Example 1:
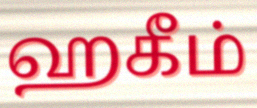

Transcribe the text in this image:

ஹகீம்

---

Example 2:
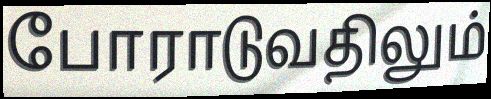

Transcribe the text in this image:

போராடுவதிலும்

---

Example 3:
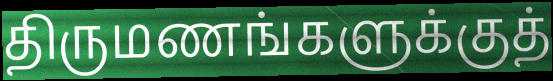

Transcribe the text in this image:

திருமணங்களுக்குத்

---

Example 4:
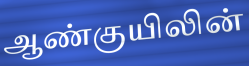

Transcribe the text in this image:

ஆண்குயிலின்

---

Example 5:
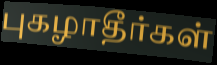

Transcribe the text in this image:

புகழாதீர்கள்